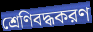
শ্রেণিবদ্ধকরণ